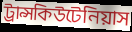
ট্রান্সকিউটেনিয়াস